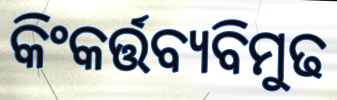
କିଂକର୍ତ୍ତବ୍ଯବିମୁଢ